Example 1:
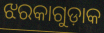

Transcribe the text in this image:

ଝରକାଗୁଡ଼ାକ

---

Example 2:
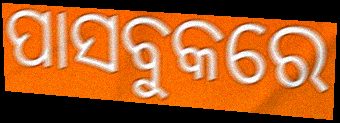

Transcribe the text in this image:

ପାସବୁକରେ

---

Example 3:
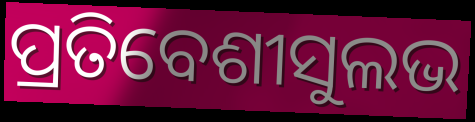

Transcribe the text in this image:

ପ୍ରତିବେଶୀସୁଲଭ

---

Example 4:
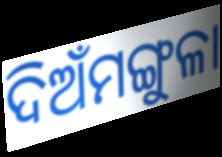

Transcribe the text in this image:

ଦିଅଁମଙ୍ଗୁଳା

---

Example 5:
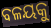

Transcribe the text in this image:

ବଳୟକୁ